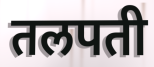
तलपती